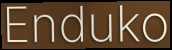
Enduko